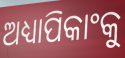
ଅଧ୍ୟାପିକାଂକୁ